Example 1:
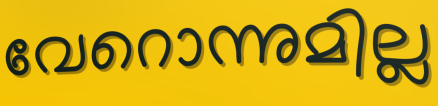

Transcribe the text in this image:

വേറൊന്നുമില്ല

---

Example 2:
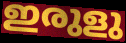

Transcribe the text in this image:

ഇരുളു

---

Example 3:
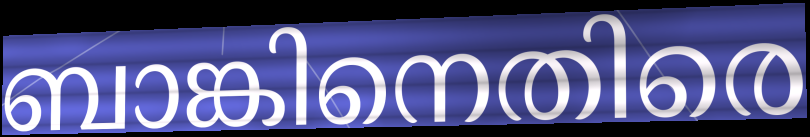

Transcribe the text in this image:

ബാങ്കിനെതിരെ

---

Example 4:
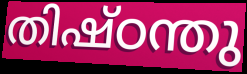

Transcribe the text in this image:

തിഷ്ഠന്തു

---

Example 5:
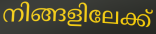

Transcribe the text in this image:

നിങ്ങളിലേക്ക്